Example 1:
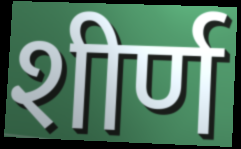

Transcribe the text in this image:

शीर्ण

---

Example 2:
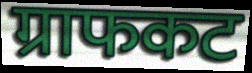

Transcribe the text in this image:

ग्राफकट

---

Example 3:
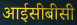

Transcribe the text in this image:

आईसीबीसी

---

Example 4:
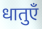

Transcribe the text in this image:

धातुएँ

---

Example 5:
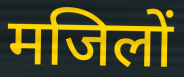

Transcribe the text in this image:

मजिलों